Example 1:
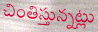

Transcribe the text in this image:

చింతిస్తున్నట్లు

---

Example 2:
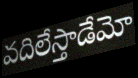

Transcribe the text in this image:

వదిలేస్తాడేమో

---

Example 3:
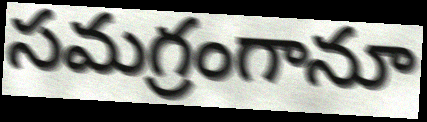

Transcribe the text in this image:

సమగ్రంగానూ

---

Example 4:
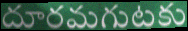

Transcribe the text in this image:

దూరమగుటకు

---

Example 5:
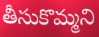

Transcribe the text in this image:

తీసుకొమ్మని